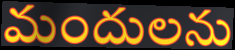
మందులను